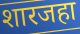
शारजहा